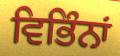
ਵਿਭਿੰਨਾਂ